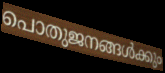
പൊതുജനങ്ങൾക്കും